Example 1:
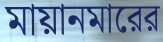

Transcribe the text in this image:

মায়ানমারের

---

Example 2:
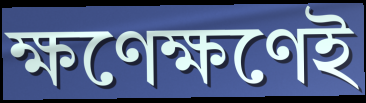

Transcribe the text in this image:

ক্ষণেক্ষণেই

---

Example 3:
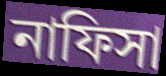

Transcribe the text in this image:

নাফিসা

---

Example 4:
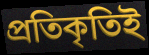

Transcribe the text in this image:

প্রতিকৃতিই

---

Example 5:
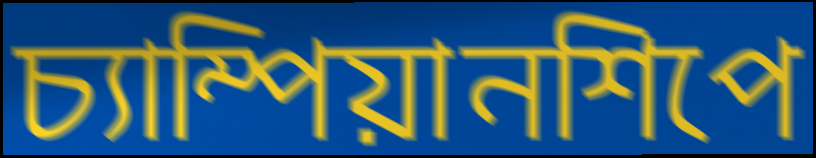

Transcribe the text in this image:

চ্যাম্পিয়ানশিপে